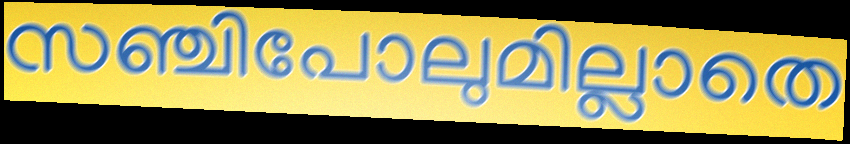
സഞ്ചിപോലുമില്ലാതെ